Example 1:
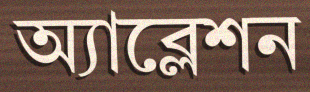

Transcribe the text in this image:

অ্যাব্লেশন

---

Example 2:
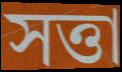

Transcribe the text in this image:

সত্তা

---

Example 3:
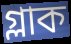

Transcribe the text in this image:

গ্লাক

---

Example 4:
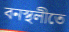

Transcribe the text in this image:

বনস্থলীতে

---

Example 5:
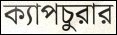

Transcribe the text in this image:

ক্যাপচুরার